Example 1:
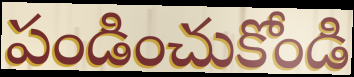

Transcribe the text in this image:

పండించుకోండి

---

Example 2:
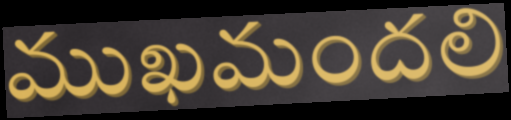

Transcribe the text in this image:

ముఖమందలి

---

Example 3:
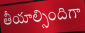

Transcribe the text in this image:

తీయాల్సిందిగా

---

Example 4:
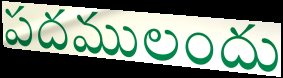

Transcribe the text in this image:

పదములందు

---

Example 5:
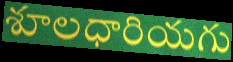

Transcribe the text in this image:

శూలధారియగు